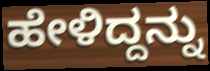
ಹೇಳಿದ್ದನ್ನು